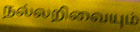
நல்லறிவையும்